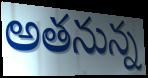
అతనున్న